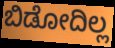
ಬಿಡೋದಿಲ್ಲ